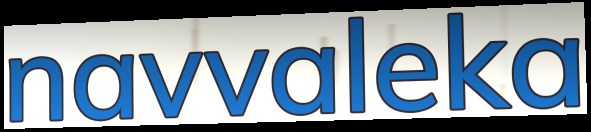
navvaleka